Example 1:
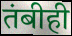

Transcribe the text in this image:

तंबीही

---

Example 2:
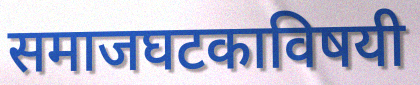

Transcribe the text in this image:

समाजघटकाविषयी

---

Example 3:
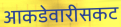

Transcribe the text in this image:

आकडेवारीसकट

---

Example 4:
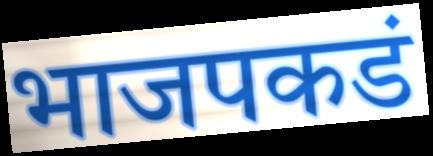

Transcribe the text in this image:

भाजपकडं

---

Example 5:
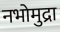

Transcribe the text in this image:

नभोमुद्रा